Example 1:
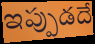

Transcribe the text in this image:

ఇప్పుడదే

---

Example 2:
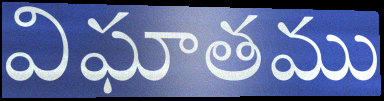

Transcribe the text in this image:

విఘాతము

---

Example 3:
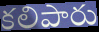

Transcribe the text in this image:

కలిపారు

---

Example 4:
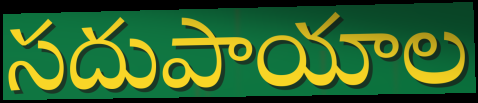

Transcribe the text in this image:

సదుపాయాల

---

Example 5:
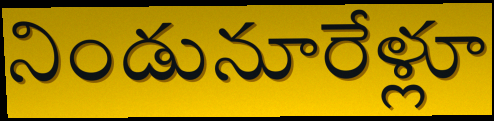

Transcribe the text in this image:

నిండునూరేళ్లూ